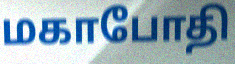
மகாபோதி